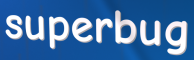
superbug